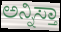
ಅನ್ನಿಸ್ತಾ